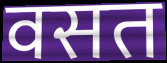
वसत